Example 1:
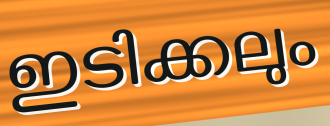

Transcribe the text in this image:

ഇടിക്കലും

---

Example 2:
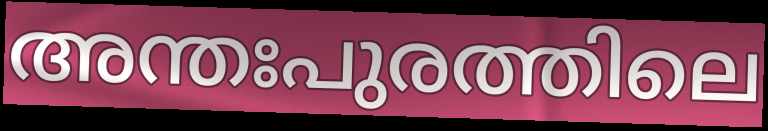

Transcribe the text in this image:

അന്തഃപുരത്തിലെ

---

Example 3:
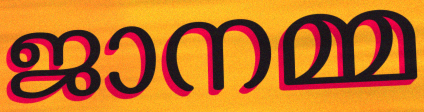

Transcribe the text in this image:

ജാനമ്മ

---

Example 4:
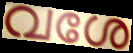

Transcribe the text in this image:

വശേ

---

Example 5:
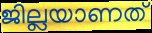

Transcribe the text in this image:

ജില്ലയാണത്